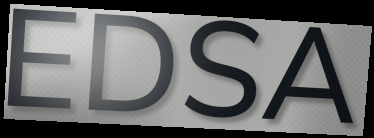
EDSA